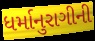
ધર્માનુરાગીની